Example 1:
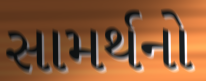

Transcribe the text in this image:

સામર્થનો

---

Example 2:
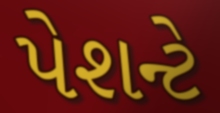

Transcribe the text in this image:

પેશન્ટે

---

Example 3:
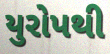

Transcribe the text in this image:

યુરોપથી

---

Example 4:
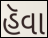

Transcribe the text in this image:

હૅવા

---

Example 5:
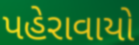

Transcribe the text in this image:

પહેરાવાયો